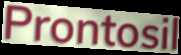
Prontosil